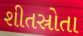
શીતસ્રોતા